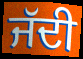
ਜੱਦੀ